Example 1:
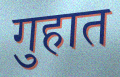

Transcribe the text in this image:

गुहात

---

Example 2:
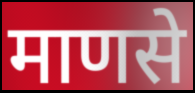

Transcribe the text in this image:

माणसे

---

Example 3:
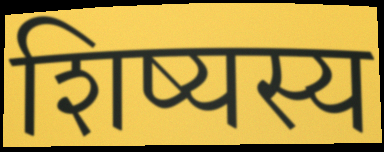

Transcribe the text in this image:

शिष्यस्य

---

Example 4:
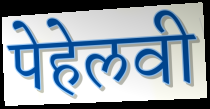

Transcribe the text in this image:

पेहेलवी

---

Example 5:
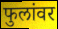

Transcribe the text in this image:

फुलांवर